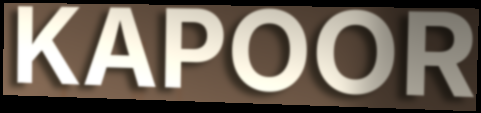
KAPOOR